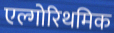
एल्गोरिथमिक